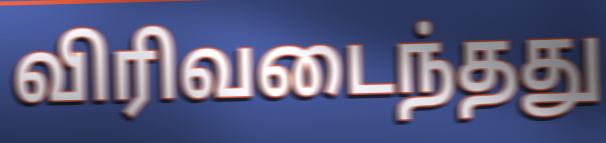
விரிவடைந்தது